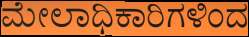
ಮೇಲಾಧಿಕಾರಿಗಳಿಂದ